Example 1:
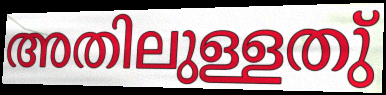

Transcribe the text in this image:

അതിലുള്ളതു്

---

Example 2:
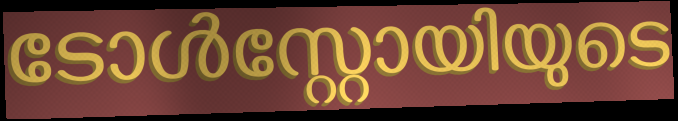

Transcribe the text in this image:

ടോൾസ്റ്റോയിയുടെ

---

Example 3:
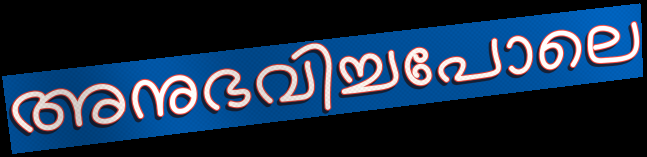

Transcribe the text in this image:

അനുഭവിച്ചപോലെ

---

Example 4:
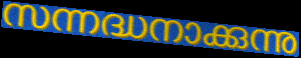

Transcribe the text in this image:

സന്നദ്ധനാക്കുന്നു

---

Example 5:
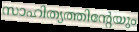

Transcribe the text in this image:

സാഹിത്യത്തിന്റേയും